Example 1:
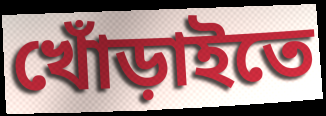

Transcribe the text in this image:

খোঁড়াইতে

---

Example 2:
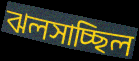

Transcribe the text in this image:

ঝলসাচ্ছিল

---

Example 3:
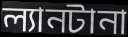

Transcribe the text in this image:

ল্যানটানা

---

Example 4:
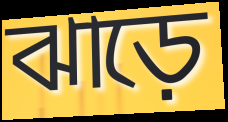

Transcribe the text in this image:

ঝাড়ে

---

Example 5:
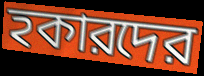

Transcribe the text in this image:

হকারদের